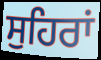
ਸੁਹਿਰਾਂ